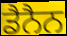
ਡੈਨੈਨ